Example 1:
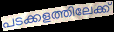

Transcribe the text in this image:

പടക്കളത്തിലേക്ക്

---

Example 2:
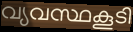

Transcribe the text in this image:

വ്യവസ്ഥകൂടി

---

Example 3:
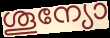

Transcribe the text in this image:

ശൂന്യോ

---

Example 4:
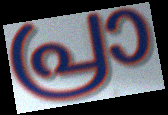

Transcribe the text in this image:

പ്രാ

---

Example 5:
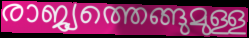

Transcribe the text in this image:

രാജ്യത്തെങ്ങുമുള്ള